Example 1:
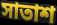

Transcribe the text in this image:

সাতাশ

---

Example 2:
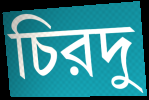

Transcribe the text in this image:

চিরদু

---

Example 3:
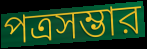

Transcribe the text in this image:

পত্রসম্ভার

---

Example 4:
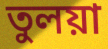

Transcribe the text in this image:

তুলয়া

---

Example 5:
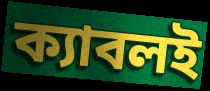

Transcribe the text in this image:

ক্যাবলই